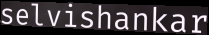
selvishankar